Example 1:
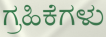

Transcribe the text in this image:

ಗ್ರಹಿಕೆಗಳು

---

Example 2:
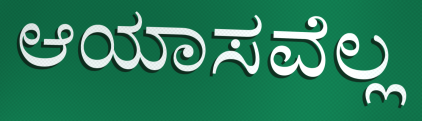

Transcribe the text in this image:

ಆಯಾಸವೆಲ್ಲ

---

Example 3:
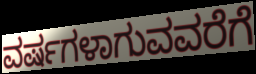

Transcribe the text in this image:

ವರ್ಷಗಳಾಗುವವರೆಗೆ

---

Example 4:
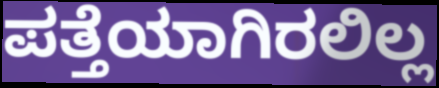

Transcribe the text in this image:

ಪತ್ತೆಯಾಗಿರಲಿಲ್ಲ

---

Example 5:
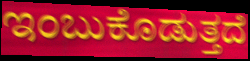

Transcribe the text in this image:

ಇಂಬುಕೊಡುತ್ತದೆ